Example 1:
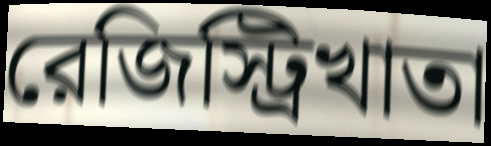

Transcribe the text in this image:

রেজিস্ট্রিখাতা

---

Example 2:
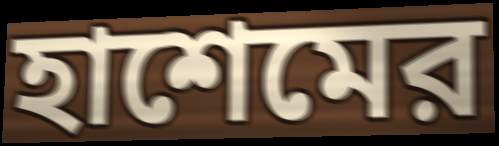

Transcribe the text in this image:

হাশেমের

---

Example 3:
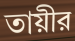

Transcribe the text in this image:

তায়ীর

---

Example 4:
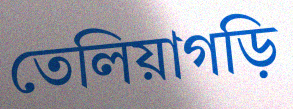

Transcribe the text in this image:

তেলিয়াগড়ি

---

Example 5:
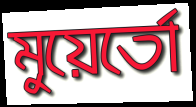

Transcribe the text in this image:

মুয়ের্তো